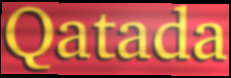
Qatada